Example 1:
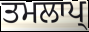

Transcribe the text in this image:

ਤਮਲਾਪ੍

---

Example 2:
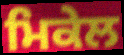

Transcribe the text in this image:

ਮਿਕੇਲ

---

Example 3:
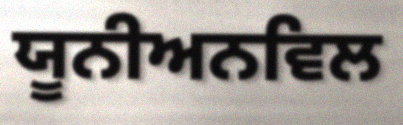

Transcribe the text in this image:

ਯੂਨੀਅਨਵਿਲ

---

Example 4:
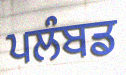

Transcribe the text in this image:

ਪਲੰਬਡ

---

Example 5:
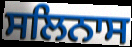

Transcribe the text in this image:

ਸਲਿਨਾਸ